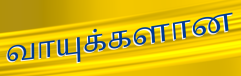
வாயுக்களான